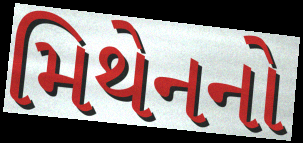
મિથેનનો